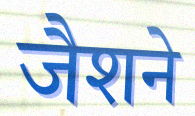
जैशने